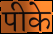
पीके